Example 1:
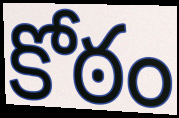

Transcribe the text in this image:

కోఠం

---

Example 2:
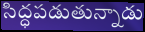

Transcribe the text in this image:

సిద్ధపడుతున్నాడు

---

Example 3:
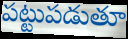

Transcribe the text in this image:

పట్టుపడుతూ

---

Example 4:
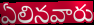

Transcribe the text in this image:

ఏలినవారు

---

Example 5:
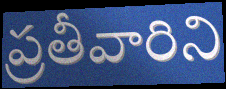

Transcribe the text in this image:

ప్రతీవారిని